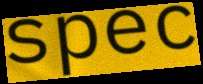
spec